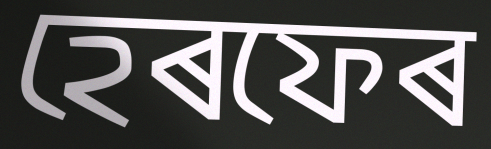
হেৰফেৰ